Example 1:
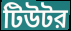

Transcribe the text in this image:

টিউটর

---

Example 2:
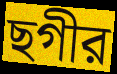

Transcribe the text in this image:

ছগীর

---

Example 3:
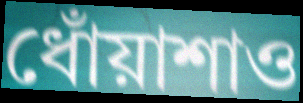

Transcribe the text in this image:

ধোঁয়াশাও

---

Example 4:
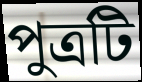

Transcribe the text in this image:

পুত্রটি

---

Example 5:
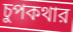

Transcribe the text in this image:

চুপকথার